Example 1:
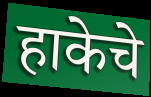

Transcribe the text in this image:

हाकेचे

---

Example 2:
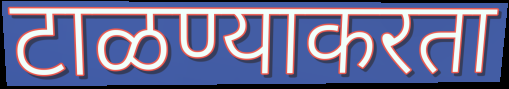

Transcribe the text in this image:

टाळण्याकरता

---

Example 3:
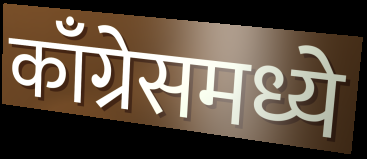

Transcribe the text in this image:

काँग्रेसमध्ये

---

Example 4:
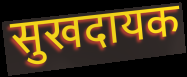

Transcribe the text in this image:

सुखदायक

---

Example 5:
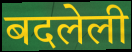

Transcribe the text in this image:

बदलेली